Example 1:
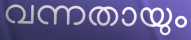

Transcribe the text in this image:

വന്നതായും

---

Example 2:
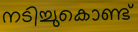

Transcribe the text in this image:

നടിച്ചുകൊണ്ട്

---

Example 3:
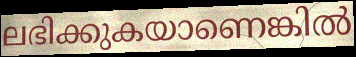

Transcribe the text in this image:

ലഭിക്കുകയാണെങ്കിൽ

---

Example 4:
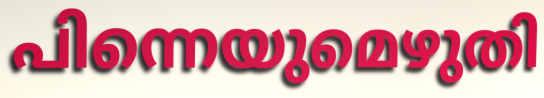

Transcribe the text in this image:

പിന്നെയുമെഴുതി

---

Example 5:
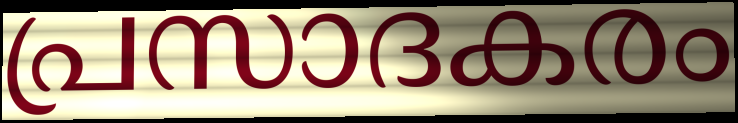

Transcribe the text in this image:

പ്രസാദകരം